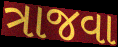
ત્રાજવા